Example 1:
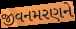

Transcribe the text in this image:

જીવનમરણને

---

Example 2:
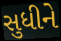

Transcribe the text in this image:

સુધીને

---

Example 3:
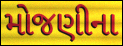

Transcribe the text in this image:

મોજણીના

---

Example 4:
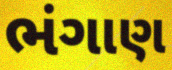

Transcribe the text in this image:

ભંગાણ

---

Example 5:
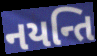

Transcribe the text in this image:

નયન્તિ